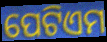
ପେଟିଏମ